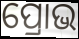
ପ୍ରୋଭ